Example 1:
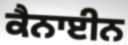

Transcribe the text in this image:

ਕੈਨਾਈਨ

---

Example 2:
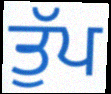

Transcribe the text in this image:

ਤੁੱਪ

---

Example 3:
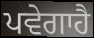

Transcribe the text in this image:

ਪਵੇਗਾਹੈ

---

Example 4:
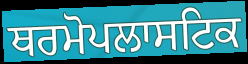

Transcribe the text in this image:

ਥਰਮੋਪਲਾਸਟਿਕ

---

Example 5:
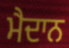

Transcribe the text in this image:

ਮੈਦਾਨ